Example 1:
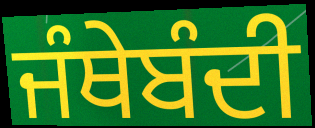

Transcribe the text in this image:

ਜੰਥੇਬੰਦੀ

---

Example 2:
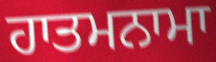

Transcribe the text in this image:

ਹਾਤਮਨਾਮਾ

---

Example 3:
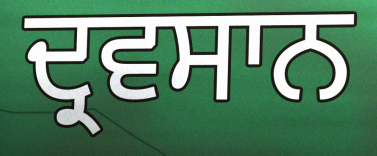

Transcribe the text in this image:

ਦ੍ਰਵਸਾਨ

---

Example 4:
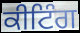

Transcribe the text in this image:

ਕੀਟਿੰਗ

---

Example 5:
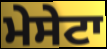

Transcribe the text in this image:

ਮੇਸੇਟਾ